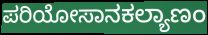
ಪರಿಯೋಸಾನಕಲ್ಯಾಣಂ